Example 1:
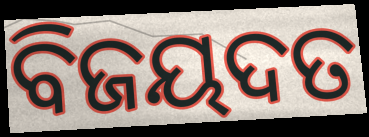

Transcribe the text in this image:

ବିଜୟଦତ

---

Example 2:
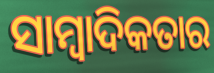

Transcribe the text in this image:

ସାମ୍ୱାଦିକତାର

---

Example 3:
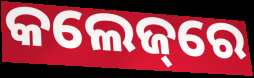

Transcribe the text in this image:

କଲେଜ୍‌ରେ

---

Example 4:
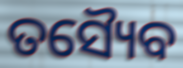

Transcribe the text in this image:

ତସ୍ୟୈବ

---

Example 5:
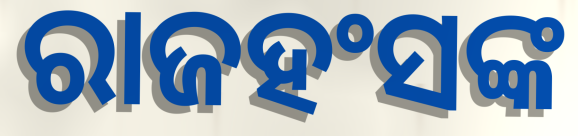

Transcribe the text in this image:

ରାଜହଂସଙ୍କ